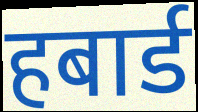
हबार्ड